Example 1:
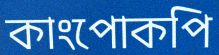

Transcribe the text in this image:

কাংপোকপি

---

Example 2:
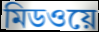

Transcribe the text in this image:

মিডওয়ে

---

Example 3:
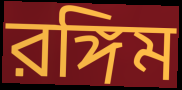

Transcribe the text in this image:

রঙ্গিম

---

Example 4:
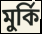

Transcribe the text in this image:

মুর্কি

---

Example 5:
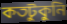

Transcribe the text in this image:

কতটুকুনি